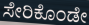
ಸೇರಿಕೊಂಡೇ